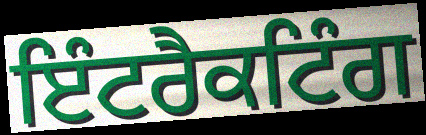
ਇੰਟਰੈਕਟਿੰਗ